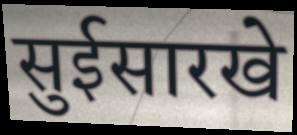
सुईसारखे